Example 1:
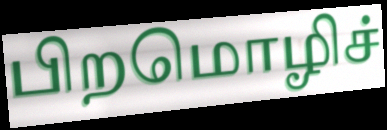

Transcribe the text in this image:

பிறமொழிச்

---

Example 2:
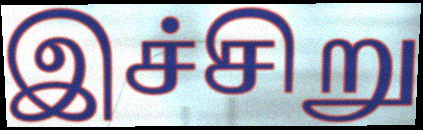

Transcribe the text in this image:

இச்சிறு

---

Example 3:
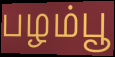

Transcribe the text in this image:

பழம்பூ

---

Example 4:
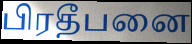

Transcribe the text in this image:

பிரதீபனை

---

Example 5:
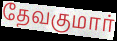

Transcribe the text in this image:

தேவகுமார்